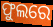
ଫୁଲରେ